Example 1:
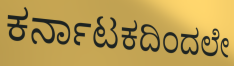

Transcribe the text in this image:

ಕರ್ನಾಟಕದಿಂದಲೇ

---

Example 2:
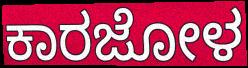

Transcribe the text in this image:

ಕಾರಜೋಳ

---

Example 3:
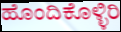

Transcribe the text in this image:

ಹೊಂದಿಕೊಳ್ಳಿರಿ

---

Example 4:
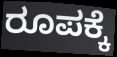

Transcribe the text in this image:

ರೂಪಕ್ಕೆ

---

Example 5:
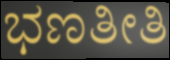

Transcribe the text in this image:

ಭಣತೀತಿ